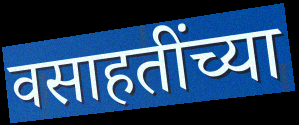
वसाहतींच्या